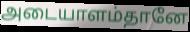
அடையாளம்தானே